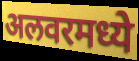
अलवरमध्ये